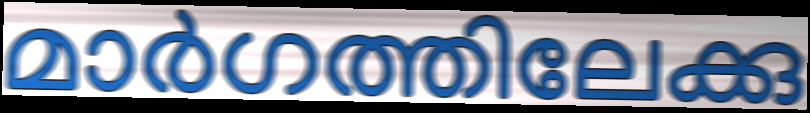
മാർഗത്തിലേക്കു